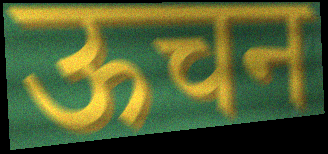
ऊचन